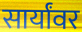
सार्यांवर